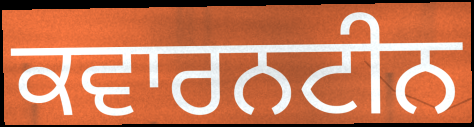
ਕਵਾਰਨਟੀਨ